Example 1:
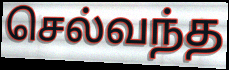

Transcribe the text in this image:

செல்வந்த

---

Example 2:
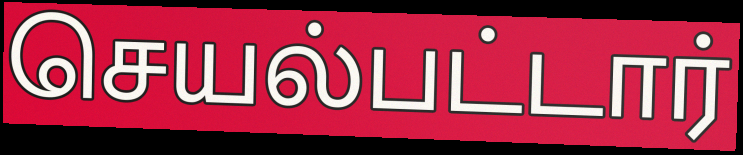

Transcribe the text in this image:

செயல்பட்டார்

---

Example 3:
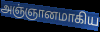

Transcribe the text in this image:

அஞ்ஞானமாகிய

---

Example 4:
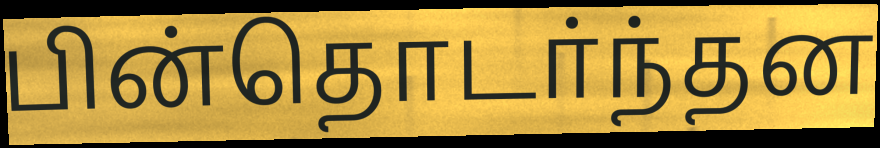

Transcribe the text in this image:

பின்தொடர்ந்தன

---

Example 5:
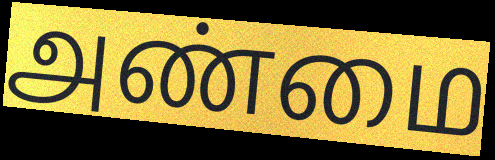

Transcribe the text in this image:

அண்மை